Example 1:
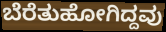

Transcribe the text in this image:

ಬೆರೆತುಹೋಗಿದ್ದವು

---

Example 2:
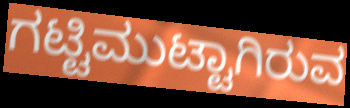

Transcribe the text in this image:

ಗಟ್ಟಿಮುಟ್ಟಾಗಿರುವ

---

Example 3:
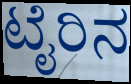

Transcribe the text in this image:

ಟೈರಿನ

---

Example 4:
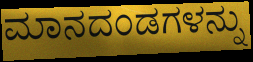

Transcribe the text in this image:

ಮಾನದಂಡಗಳನ್ನು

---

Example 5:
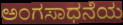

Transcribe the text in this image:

ಅಂಗಸಾಧನೆಯ